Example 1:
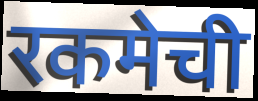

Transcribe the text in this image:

रकमेची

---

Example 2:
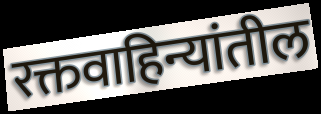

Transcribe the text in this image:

रक्तवाहिन्यांतील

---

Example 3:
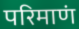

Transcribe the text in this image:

परिमाणं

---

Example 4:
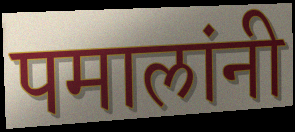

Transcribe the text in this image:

पमालांनी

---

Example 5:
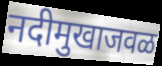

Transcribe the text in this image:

नदीमुखाजवळ